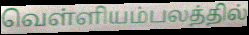
வெள்ளியம்பலத்தில்